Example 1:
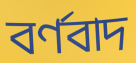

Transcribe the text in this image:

বৰ্ণবাদ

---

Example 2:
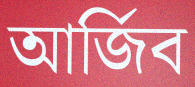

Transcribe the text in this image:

আৰ্জিব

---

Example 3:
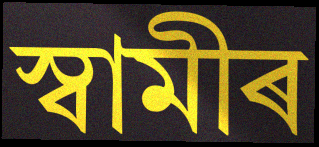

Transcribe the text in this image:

স্বামীৰ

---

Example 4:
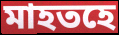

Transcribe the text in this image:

মাহতহে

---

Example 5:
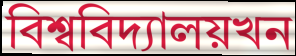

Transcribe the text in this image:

বিশ্ববিদ্যালয়খন